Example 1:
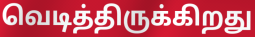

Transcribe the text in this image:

வெடித்திருக்கிறது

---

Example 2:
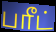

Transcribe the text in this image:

பரீட்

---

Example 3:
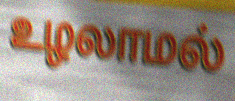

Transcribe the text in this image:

உழலாமல்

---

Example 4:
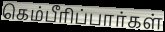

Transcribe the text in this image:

கெம்பீரிப்பார்கள்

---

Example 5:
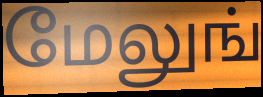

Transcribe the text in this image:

மேலுங்